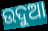
ଉଦୁଆ